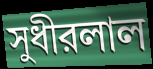
সুধীরলাল